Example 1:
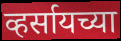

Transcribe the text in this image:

व्हर्सायच्या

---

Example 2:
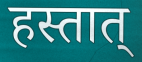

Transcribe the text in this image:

हस्तात्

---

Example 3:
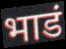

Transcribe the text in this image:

भाडं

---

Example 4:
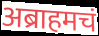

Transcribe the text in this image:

अब्राहमचं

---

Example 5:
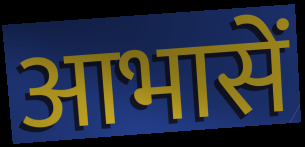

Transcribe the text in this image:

आभासें